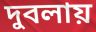
দুবলায়